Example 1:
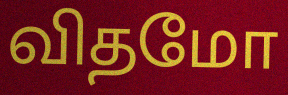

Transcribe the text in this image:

விதமோ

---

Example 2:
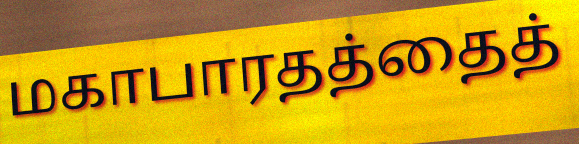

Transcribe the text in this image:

மகாபாரதத்தைத்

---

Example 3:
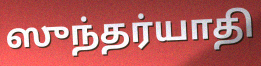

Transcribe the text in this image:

ஸுந்தர்யாதி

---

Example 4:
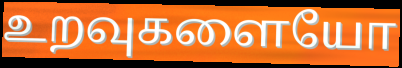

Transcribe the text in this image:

உறவுகளையோ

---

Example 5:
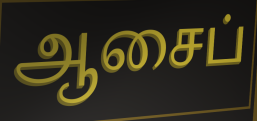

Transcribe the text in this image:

ஆசைப்